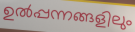
ഉൽപ്പന്നങ്ങളിലും